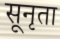
सूनृता